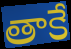
తాకే